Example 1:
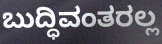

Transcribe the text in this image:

ಬುದ್ಧಿವಂತರಲ್ಲ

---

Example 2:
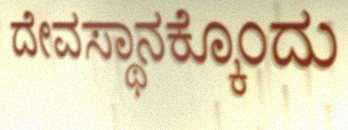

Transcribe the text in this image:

ದೇವಸ್ಥಾನಕ್ಕೊಂದು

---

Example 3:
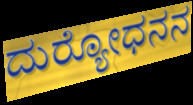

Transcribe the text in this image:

ದುರ‍್ಯೋಧನನ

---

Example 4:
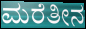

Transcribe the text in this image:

ಮರೆತೀನ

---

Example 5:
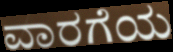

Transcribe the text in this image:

ವಾರಗೆಯ